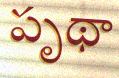
పృథా